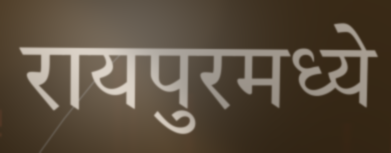
रायपुरमध्ये